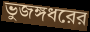
ভুজঙ্গধরের